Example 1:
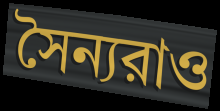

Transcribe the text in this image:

সৈন্যরাও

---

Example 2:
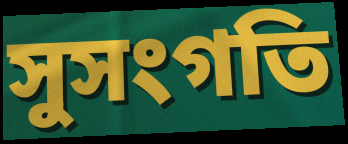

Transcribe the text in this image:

সুসংগতি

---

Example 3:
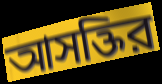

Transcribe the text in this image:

আসক্তির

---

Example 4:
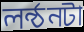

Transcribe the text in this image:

লন্ঠনটা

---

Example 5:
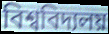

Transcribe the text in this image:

বিশ্ববিদ্যলয়